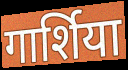
गार्शिया